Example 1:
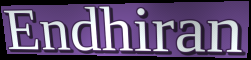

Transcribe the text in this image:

Endhiran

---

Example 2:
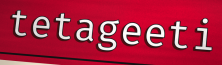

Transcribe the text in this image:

tetageeti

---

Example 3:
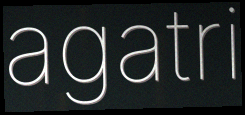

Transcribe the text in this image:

agatri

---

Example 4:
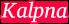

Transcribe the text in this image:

Kalpna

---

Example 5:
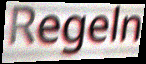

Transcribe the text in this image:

Regeln